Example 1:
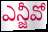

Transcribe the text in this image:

ఎన్జీవో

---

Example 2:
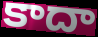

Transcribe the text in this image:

కాదా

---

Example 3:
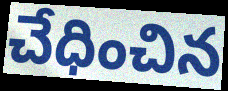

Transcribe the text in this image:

చేధించిన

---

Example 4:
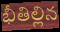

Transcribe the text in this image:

భీతిల్లిన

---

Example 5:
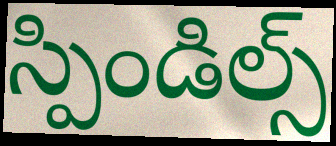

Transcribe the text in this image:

స్పిండిల్స్